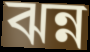
ঝন্ন